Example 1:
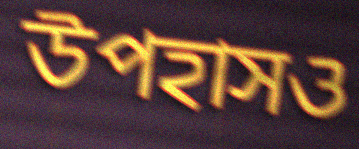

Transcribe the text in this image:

উপহাসও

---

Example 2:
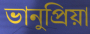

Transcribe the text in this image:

ভানুপ্রিয়া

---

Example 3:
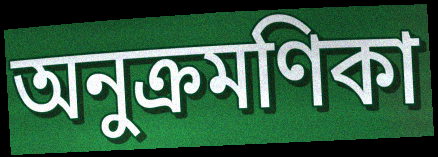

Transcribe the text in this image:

অনুক্রমণিকা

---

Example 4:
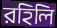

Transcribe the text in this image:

রহিলি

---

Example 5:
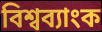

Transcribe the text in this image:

বিশ্বব্যাংক